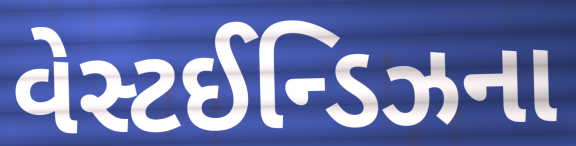
વેસ્ટઈન્ડિઝના